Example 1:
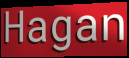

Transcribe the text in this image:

Hagan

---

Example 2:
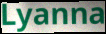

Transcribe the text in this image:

Lyanna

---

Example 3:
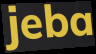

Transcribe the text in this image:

jeba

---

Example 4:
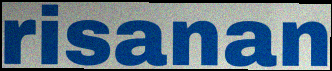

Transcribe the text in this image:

risanan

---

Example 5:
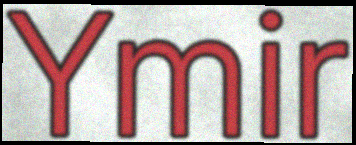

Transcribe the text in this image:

Ymir